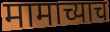
मामाच्याच